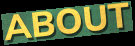
ABOUT